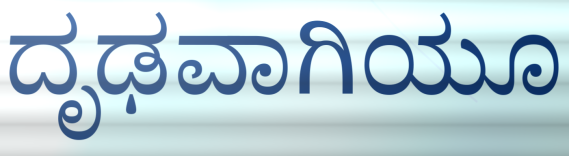
ದೃಢವಾಗಿಯೂ